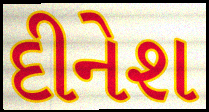
દીનેશ